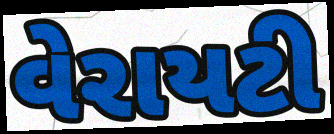
વેરાયટી